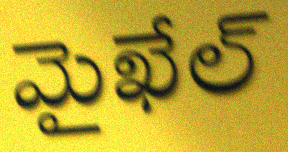
మైఖేల్